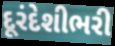
દૂરંદેશીભરી